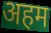
अहम